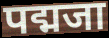
पद्मजा